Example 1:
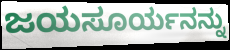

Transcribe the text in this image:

ಜಯಸೂರ್ಯನನ್ನು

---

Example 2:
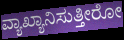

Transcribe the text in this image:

ವ್ಯಾಖ್ಯಾನಿಸುತ್ತೀರೋ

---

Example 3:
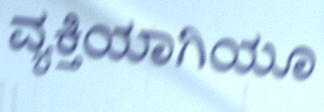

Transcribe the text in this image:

ವ್ಯಕ್ತಿಯಾಗಿಯೂ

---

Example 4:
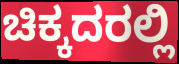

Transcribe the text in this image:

ಚಿಕ್ಕದರಲ್ಲಿ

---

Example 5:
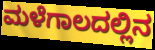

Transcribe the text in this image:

ಮಳೆಗಾಲದಲ್ಲಿನ